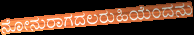
ನೋನುರಾಗದಲರುಹಿಯೆಂದನು